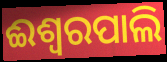
ଈଶ୍ୱରପାଲି